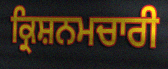
ਕ੍ਰਿਸ਼ਨਮਚਾਰੀ